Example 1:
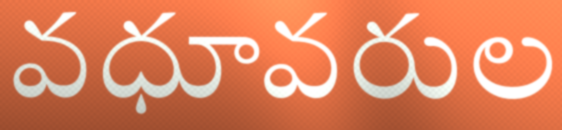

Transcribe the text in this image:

వధూవరుల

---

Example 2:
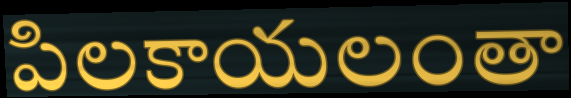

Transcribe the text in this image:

పిలకాయలంతా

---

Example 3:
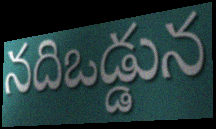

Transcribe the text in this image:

నదిఒడ్డున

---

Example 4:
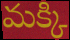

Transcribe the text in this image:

మక్కి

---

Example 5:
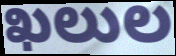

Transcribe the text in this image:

ఖలుల